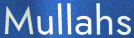
Mullahs